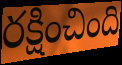
రక్షించింది